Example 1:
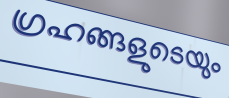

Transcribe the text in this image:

ഗ്രഹങ്ങളുടെയും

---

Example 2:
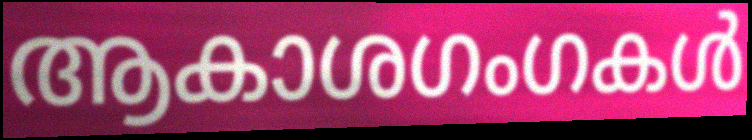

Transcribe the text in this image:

ആകാശഗംഗകൾ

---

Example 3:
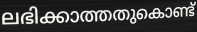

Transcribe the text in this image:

ലഭിക്കാത്തതുകൊണ്ട്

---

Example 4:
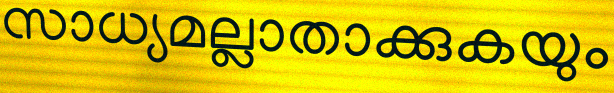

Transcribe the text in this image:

സാധ്യമല്ലാതാക്കുകയും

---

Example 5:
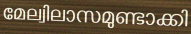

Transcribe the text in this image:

മേല്വിലാസമുണ്ടാക്കി